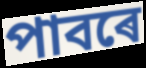
পাবৰে